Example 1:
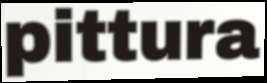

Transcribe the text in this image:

pittura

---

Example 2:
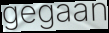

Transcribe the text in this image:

gegaan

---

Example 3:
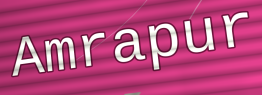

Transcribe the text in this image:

Amrapur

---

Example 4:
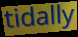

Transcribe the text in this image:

tidally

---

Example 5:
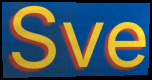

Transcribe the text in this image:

Sve